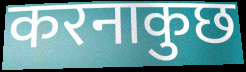
करनाकुछ